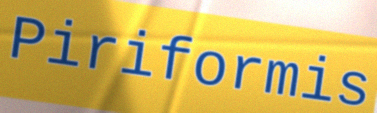
Piriformis